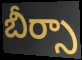
బీర్సా